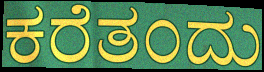
ಕರೆತಂದು